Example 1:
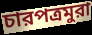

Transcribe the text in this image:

চারপত্রমুরা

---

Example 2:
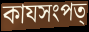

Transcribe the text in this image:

কাযসংপত্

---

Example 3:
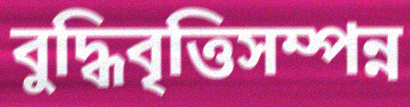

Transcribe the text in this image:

বুদ্ধিবৃত্তিসম্পন্ন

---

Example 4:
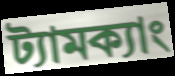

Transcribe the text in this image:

ট্যামক্যাং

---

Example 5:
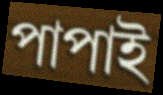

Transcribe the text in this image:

পাপাই